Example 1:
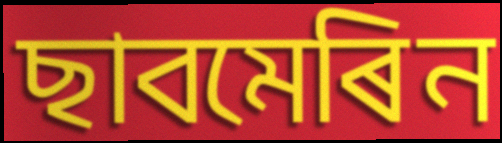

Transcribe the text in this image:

ছাবমেৰিন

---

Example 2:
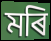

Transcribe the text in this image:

মৰি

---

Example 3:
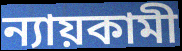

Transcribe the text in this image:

ন্যায়কামী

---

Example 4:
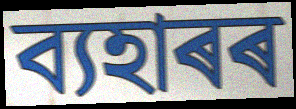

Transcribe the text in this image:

ব্যহাৰৰ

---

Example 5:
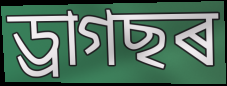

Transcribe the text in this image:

ড্ৰাগছৰ